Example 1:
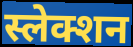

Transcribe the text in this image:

स्लेक्शन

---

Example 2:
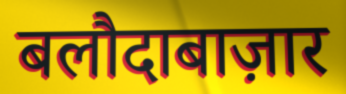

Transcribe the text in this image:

बलौदाबाज़ार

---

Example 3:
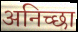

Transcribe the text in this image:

अनिच्छा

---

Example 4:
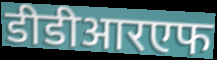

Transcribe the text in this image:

डीडीआरएफ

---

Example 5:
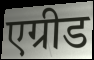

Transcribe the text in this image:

एग्रीड